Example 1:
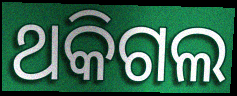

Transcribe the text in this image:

ଥକିଗଲ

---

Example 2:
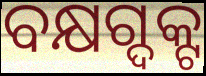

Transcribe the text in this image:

ବକ୍ଷଗ୍ଦକ୍ଟ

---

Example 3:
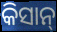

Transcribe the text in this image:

କିସାନ୍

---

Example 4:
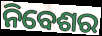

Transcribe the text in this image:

ନିବେଶର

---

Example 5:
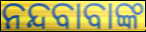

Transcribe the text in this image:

ନନ୍ଦବାବାଙ୍କ